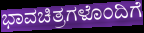
ಭಾವಚಿತ್ರಗಳೊಂದಿಗೆ